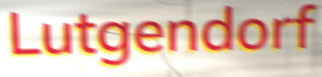
Lutgendorf